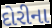
દોરીના